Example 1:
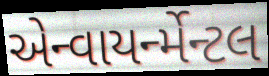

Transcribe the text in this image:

એન્વાયર્ન્મેન્ટલ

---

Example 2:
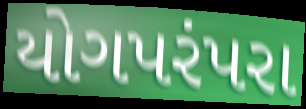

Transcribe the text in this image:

યોગપરંપરા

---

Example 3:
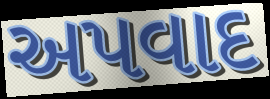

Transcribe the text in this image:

અપવાદ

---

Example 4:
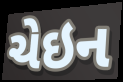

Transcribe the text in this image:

ચેઇન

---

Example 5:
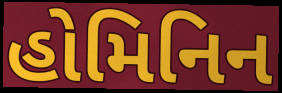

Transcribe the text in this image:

હોમિનિન